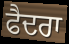
ਫੈਦਰਾ